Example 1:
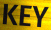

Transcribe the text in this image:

KEY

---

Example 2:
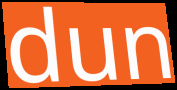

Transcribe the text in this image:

dun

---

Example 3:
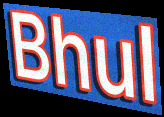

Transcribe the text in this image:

Bhul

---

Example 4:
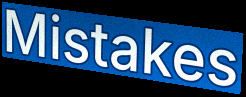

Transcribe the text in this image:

Mistakes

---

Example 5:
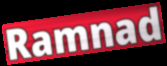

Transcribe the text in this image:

Ramnad